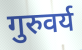
गुरुवर्य